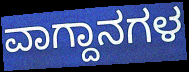
ವಾಗ್ದಾನಗಳ